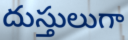
దుస్తులుగా